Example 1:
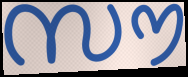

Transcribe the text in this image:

സൗ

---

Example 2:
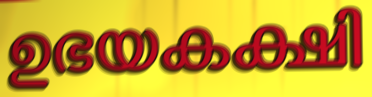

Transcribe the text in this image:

ഉഭയകക്ഷി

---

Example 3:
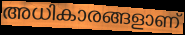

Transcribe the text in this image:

അധികാരങ്ങളാണ്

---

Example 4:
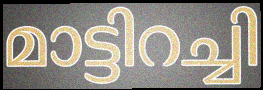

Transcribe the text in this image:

മാട്ടിറച്ചി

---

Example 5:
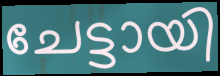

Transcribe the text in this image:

ചേട്ടായി